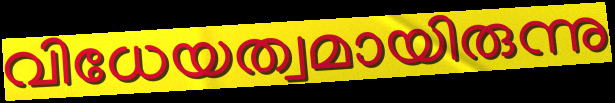
വിധേയത്വമായിരുന്നു